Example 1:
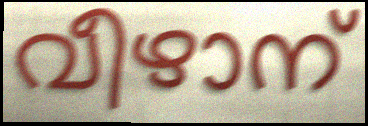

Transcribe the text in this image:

വീഴാന്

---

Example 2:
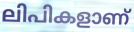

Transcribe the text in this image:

ലിപികളാണ്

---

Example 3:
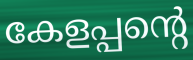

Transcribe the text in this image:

കേളപ്പന്റെ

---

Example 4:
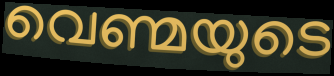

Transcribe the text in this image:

വെണ്മയുടെ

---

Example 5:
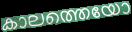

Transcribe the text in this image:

കാലത്തെയോ